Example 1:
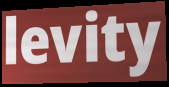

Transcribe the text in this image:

levity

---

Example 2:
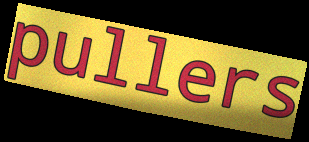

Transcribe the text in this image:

pullers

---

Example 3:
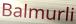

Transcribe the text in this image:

Balmurli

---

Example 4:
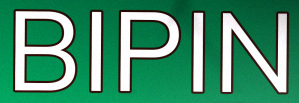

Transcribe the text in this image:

BIPIN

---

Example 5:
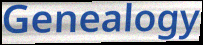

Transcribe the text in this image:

Genealogy